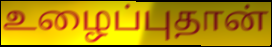
உழைப்புதான்